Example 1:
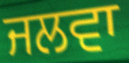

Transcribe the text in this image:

ਜਲਵਾ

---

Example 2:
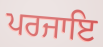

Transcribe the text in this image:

ਪਰਜਾਇ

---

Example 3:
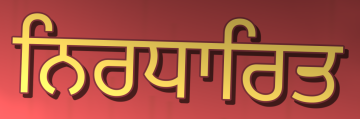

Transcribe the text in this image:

ਨਿਰਧਾਰਿਤ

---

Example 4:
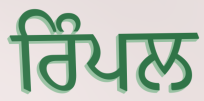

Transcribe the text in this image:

ਰਿੰਪਲ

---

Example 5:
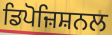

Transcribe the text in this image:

ਡਿਪੋਜ਼ਿਸ਼ਨਲ